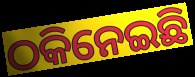
ଠକିନେଇଛି